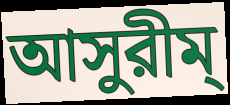
আসুরীম্